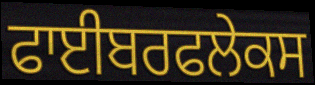
ਫਾਈਬਰਫਲੇਕਸ